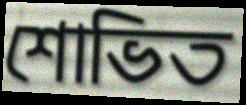
শোভিত